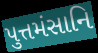
પુત્તમંસાનિ